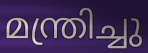
മന്ത്രിച്ചു